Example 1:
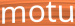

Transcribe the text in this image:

motu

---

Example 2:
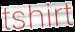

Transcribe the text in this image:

tshirt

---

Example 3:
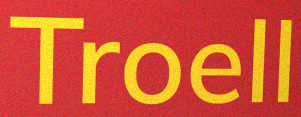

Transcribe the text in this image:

Troell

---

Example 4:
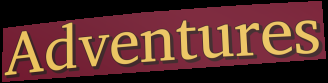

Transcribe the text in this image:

Adventures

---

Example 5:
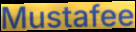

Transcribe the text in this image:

Mustafee